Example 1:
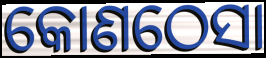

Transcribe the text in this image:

କୋଣଠେସା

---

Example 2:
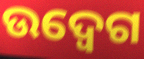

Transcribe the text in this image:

ଉଦ୍ବେଗ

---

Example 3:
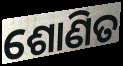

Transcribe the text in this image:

ଶୋଣିତ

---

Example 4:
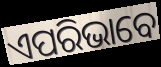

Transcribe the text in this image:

ଏପରିଭାବେ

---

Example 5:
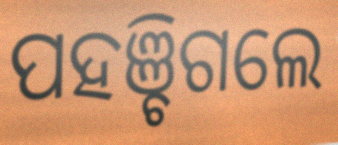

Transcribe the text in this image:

ପହଞ୍ଚିଗଲେ